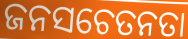
ଜନସଚେତନତା